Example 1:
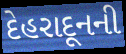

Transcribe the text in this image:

દેહરાદૂનની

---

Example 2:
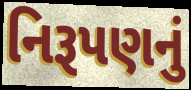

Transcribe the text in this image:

નિરૂપણનું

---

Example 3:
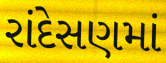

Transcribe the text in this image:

રાંદેસણમાં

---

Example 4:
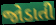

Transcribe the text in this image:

જોડાતી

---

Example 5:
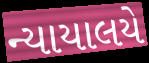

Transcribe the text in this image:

ન્યાયાલયે